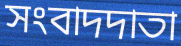
সংবাদদাতা